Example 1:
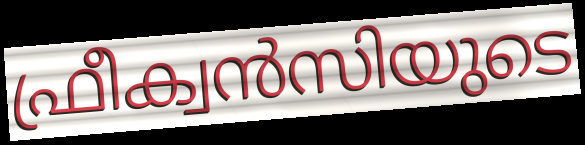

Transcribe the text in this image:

ഫ്രീക്വൻസിയുടെ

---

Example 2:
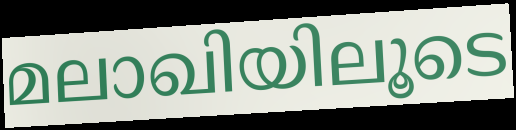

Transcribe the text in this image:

മലാഖിയിലൂടെ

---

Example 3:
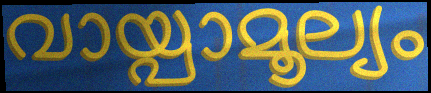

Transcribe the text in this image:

വായ്പാമൂല്യം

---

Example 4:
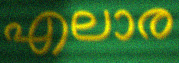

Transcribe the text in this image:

എലാര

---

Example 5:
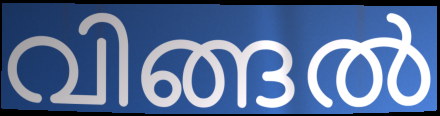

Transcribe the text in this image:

വിങ്ങൽ